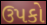
ઉપકો